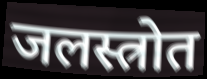
जलस्त्रोत